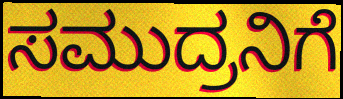
ಸಮುದ್ರನಿಗೆ